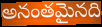
అనంతమైనది